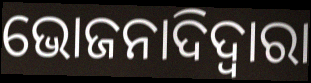
ଭୋଜନାଦିଦ୍ୱାରା